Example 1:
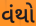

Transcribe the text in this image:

વંથો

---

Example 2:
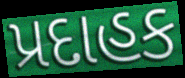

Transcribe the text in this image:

પ્રદાહક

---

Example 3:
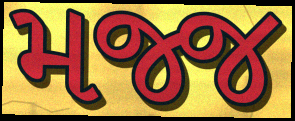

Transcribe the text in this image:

મજ્જ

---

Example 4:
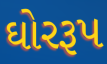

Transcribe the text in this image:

ઘોરરૂપ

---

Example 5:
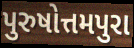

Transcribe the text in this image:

પુરુષોત્તમપુરા